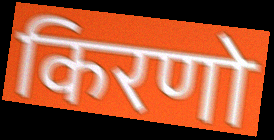
किरणो